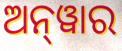
ଅନ୍‌ୱାର